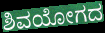
ಶಿವಯೋಗದ